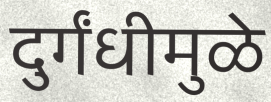
दुर्गंधीमुळे